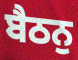
ਬੈਠਨੁ